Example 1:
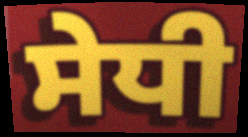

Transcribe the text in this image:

ਸੇਧੀ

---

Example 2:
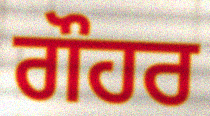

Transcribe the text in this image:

ਗੌਹਰ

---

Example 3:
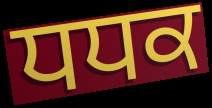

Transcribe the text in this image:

ਧਧਕ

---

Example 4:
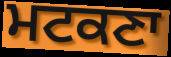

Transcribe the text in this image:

ਮਟਕਣਾ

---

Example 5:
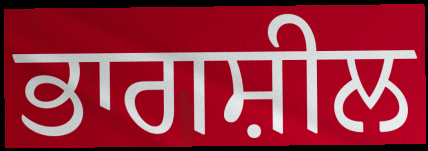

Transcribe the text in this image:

ਭਾਗਸ਼ੀਲ